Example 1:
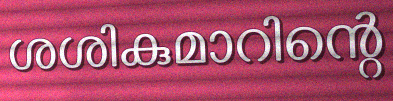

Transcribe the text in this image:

ശശികുമാറിന്റെ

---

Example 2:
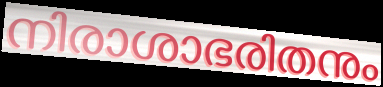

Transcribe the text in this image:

നിരാശാഭരിതനും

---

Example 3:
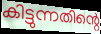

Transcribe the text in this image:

കിട്ടുന്നതിന്റെ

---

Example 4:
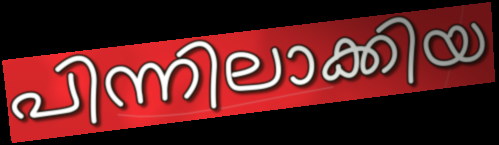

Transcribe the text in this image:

പിന്നിലാക്കിയ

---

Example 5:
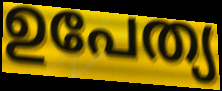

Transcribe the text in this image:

ഉപേത്യ